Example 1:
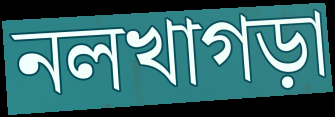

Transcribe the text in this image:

নলখাগড়া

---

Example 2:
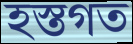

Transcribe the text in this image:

হস্তগত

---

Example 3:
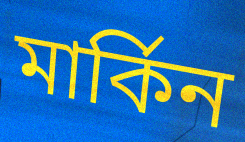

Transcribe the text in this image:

মার্কিন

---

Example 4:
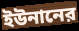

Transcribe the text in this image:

ইউনানের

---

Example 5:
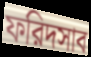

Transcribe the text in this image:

ফরিদসাব